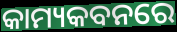
କାମ୍ୟକବନରେ